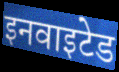
इनवाइटेड